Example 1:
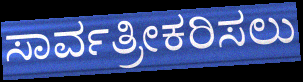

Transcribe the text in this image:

ಸಾರ್ವತ್ರೀಕರಿಸಲು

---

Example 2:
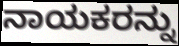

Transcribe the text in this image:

ನಾಯಕರನ್ನು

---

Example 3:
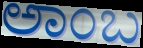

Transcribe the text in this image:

ಅಾಂಬ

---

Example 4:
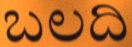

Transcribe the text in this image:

ಬಲದಿ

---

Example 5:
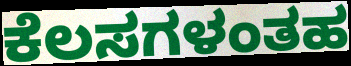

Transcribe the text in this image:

ಕೆಲಸಗಳಂತಹ